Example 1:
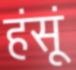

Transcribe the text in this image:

हंसूं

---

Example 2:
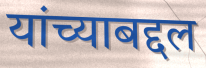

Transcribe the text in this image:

यांच्याबद्दल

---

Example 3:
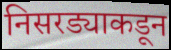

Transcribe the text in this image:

निसरड्याकडून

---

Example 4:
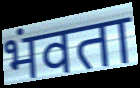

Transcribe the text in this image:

भंवता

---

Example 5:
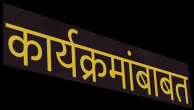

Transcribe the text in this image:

कार्यक्रमांबाबत